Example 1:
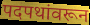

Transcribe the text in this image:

पदपथांवरून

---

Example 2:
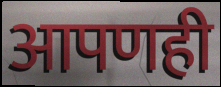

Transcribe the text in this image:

आपणही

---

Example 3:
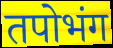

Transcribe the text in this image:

तपोभंग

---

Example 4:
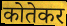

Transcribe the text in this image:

कोतेकर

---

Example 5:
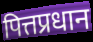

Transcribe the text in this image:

पित्तप्रधान